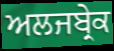
ਅਲਜਬ੍ਰੇਕ